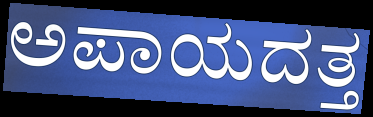
ಅಪಾಯದತ್ತ